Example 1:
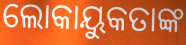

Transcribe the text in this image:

ଲୋକାୟୁକତାଙ୍କ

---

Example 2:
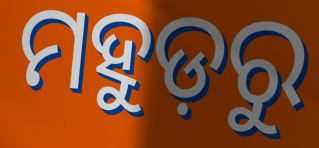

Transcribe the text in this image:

ମହୁଡ଼ରୁ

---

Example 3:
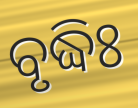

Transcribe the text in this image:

ବୃଦ୍ଧିଃ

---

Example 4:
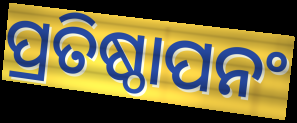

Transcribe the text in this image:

ପ୍ରତିଷ୍ଠାପନଂ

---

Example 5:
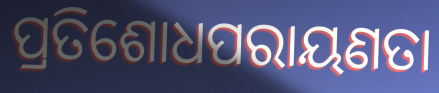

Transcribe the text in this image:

ପ୍ରତିଶୋଧପରାୟଣତା